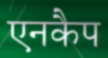
एनकैप